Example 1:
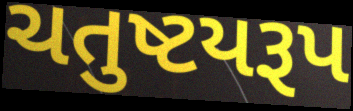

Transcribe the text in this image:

ચતુષ્ટયરૂપ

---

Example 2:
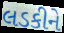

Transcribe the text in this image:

લડકીને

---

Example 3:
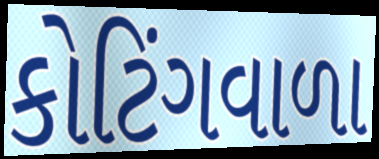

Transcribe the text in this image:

કોટિંગવાળા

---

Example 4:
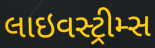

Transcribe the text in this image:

લાઇવસ્ટ્રીમ્સ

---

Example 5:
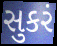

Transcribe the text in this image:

સુકરં